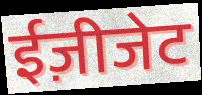
ईज़ीजेट